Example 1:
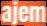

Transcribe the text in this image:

ajem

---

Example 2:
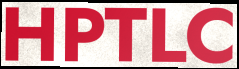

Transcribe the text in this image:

HPTLC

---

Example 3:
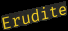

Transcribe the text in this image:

Erudite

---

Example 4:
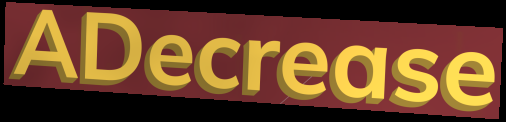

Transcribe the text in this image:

ADecrease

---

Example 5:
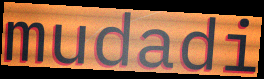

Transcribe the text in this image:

mudadi